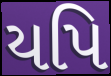
યપિ